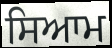
ਸਿਆਮ